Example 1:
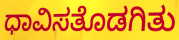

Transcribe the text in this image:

ಧಾವಿಸತೊಡಗಿತು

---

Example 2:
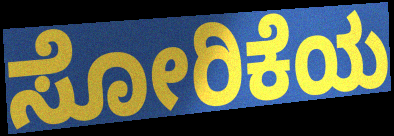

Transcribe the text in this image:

ಸೋರಿಕೆಯ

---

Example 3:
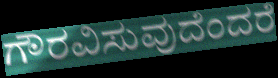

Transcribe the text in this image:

ಗೌರವಿಸುವುದೆಂದರೆ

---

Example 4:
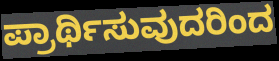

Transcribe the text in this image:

ಪ್ರಾರ್ಥಿಸುವುದರಿಂದ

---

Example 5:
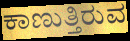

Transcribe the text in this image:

ಕಾಣುತ್ತಿರುವ